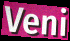
Veni